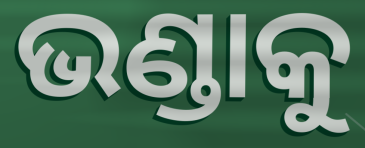
ଭଣ୍ଡାକୁ